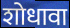
शोधावा